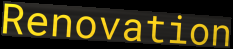
Renovation